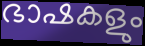
ഭാഷകളും